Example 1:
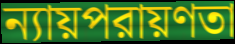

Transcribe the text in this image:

ন্যায়পরায়ণতা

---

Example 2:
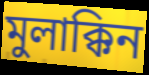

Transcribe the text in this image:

মুলাক্কিন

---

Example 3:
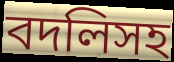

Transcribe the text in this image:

বদলিসহ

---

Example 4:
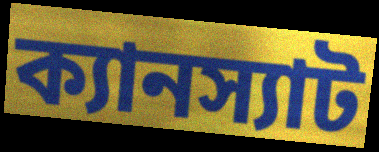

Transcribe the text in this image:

ক্যানস্যাট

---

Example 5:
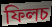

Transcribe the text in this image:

ফিলচ